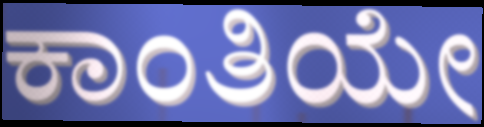
ಕಾಂತಿಯೇ